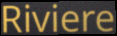
Riviere